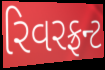
રિવરફ્રન્ટ